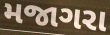
મજાગરા